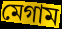
মেগাম